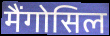
मैंगोसिल